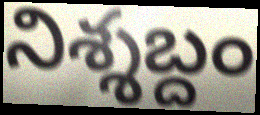
నిశ్శబ్దం